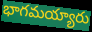
భాగమయ్యారు